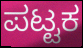
ಪಟ್ಟಕ